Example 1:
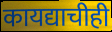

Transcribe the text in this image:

कायद्याचीही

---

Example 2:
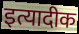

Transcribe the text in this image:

इत्यादीक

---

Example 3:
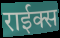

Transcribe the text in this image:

राईक्स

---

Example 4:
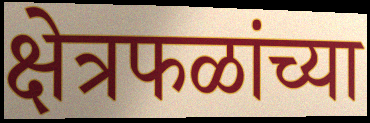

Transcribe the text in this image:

क्षेत्रफळांच्या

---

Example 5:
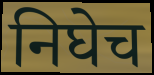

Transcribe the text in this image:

निघेच